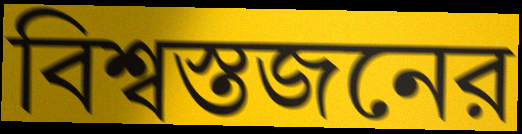
বিশ্বস্তজনের